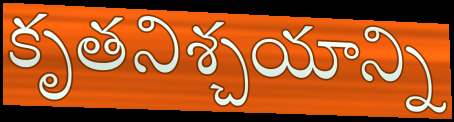
కృతనిశ్చయాన్ని